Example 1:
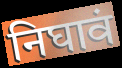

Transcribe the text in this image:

निघावं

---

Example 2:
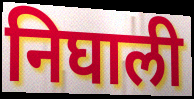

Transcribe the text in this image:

निघाली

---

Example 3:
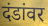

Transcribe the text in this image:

दंडांवर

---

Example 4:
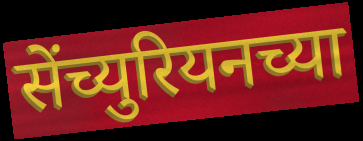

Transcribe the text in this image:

सेंच्युरियनच्या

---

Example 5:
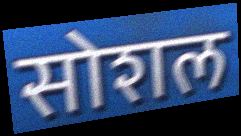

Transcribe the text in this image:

सोशल